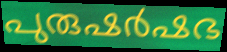
പുരുഷർഷഭ